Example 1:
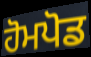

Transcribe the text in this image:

ਹੋਮਪੋਡ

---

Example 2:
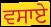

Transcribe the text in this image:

ਵਸਾਏ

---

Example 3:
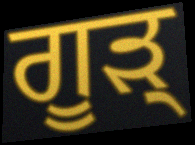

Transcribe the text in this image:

ਗੂੜ੍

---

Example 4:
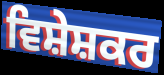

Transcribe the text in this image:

ਵਿਸ਼ੇਸ਼ਕਰ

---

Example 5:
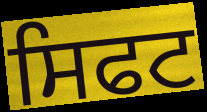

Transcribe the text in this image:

ਸਿਫਟ